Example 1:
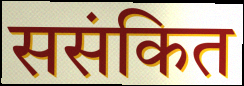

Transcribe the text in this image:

ससंकित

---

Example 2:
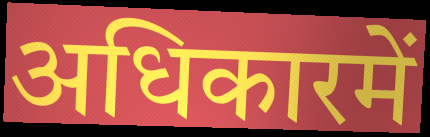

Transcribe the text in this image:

अधिकारमें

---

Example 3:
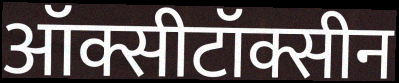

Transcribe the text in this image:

ऑक्सीटॉक्सीन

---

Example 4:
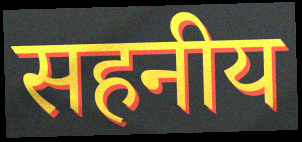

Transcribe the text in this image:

सहनीय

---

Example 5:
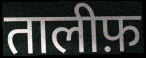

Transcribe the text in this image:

तालीफ़